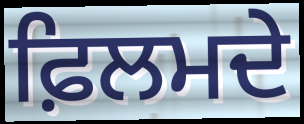
ਫ਼ਿਲਮਦੇ